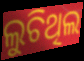
ଲୁଚିଥିଲ